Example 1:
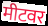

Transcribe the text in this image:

मीटवर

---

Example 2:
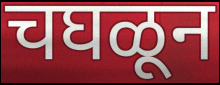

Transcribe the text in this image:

चघळून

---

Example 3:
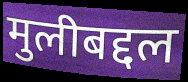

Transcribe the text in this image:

मुलीबद्दल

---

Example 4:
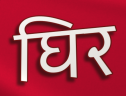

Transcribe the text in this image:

घिर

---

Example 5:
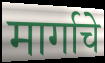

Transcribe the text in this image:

मार्गाचे